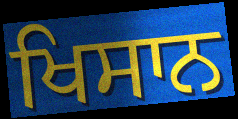
ਖਿਸਾਨ